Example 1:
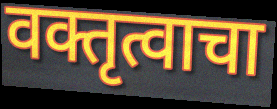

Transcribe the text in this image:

वक्तृत्वाचा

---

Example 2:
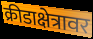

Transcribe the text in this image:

क्रीडाक्षेत्रावर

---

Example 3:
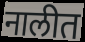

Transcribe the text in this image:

नालीत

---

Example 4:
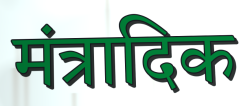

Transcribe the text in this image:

मंत्रादिक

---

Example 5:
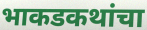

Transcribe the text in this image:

भाकडकथांचा